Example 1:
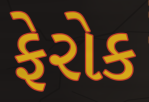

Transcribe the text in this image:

ફેરોક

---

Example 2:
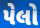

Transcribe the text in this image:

પેલો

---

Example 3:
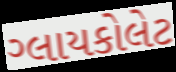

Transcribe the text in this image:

ગ્લાયકોલેટ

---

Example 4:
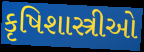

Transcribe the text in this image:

કૃષિશાસ્ત્રીઓ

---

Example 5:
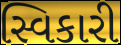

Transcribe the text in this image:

સ્વિકારી